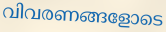
വിവരണങ്ങളോടെ